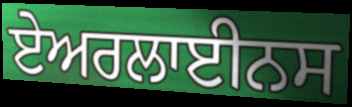
ਏਅਰਲਾਈਨਸ